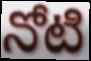
నోటి